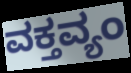
ವಕ್ತವ್ಯಂ